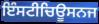
ਇੰਸਟੀਚਿਊਸਨਜ